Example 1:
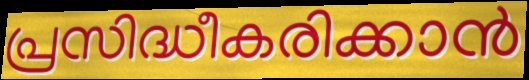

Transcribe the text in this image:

പ്രസിദ്ധീകരിക്കാൻ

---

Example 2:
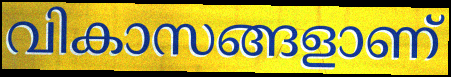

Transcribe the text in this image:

വികാസങ്ങളാണ്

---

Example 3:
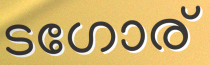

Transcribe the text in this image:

ടഗോര്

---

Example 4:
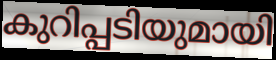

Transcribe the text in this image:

കുറിപ്പടിയുമായി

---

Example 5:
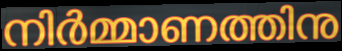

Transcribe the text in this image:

നിർമ്മാണത്തിനു